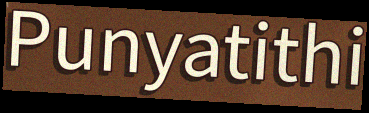
Punyatithi